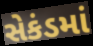
સેકંડમાં